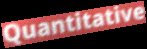
Quantitative